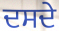
ਦਸਦੇ